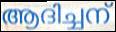
ആദിച്ചന്